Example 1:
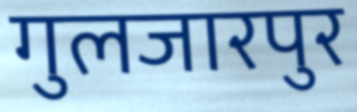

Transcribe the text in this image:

गुलजारपुर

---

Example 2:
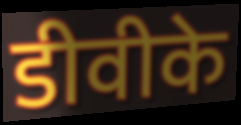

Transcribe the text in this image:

डीवीके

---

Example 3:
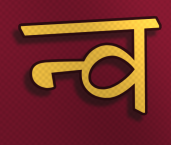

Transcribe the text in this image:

न्व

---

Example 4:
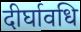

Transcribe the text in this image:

दीर्घावधि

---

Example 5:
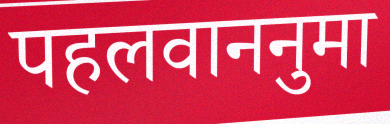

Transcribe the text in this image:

पहलवाननुमा